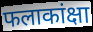
फलाकांक्षा